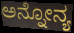
ಅನ್ನೋನ್ಯ